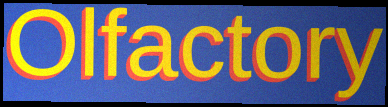
Olfactory